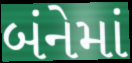
બંનેમાં